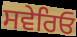
ਸਵੇਰਿਓ